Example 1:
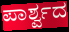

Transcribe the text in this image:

ಪಾರ್ಶ್ವದ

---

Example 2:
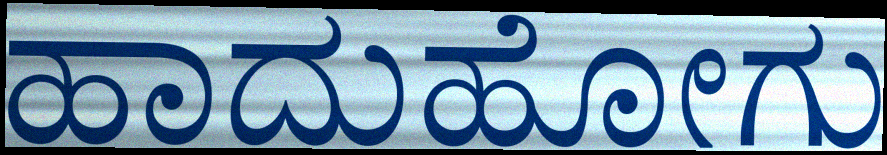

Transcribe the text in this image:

ಹಾದುಹೋಗು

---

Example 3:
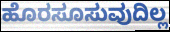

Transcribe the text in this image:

ಹೊರಸೂಸುವುದಿಲ್ಲ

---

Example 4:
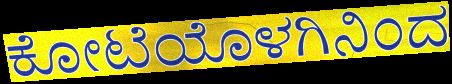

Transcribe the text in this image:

ಕೋಟೆಯೊಳಗಿನಿಂದ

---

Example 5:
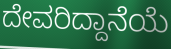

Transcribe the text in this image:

ದೇವರಿದ್ದಾನೆಯೆ